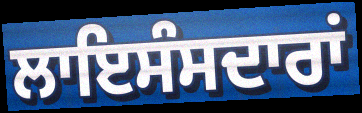
ਲਾਇਸੰਸਦਾਰਾਂ